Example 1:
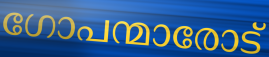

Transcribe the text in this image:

ഗോപന്മാരോട്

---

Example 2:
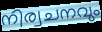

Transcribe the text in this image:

നിര്വചനവും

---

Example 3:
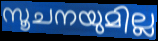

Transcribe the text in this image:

സൂചനയുമില്ല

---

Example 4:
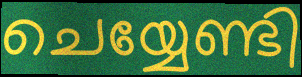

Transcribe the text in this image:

ചെയ്യേണ്ടി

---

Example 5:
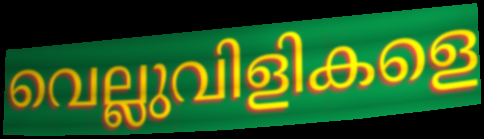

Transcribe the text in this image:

വെല്ലുവിളികളെ